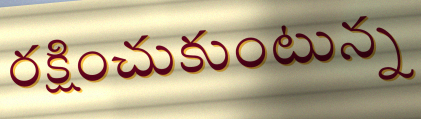
రక్షించుకుంటున్న